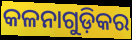
କଳନାଗୁଡ଼ିକର